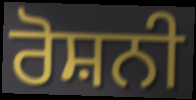
ਰੋਸ਼ਨੀ